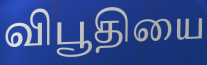
விபூதியை